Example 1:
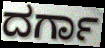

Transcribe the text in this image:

ದರ್ಗಾ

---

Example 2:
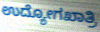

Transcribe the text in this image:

ಉದ್ಯೋಗಖಾತ್ರಿ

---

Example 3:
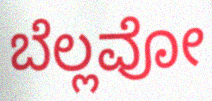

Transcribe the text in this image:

ಬೆಲ್ಲವೋ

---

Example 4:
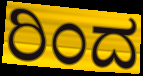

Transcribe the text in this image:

ರಿಂದ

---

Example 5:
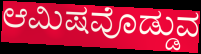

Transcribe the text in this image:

ಆಮಿಷವೊಡ್ಡುವ